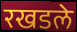
रखडले